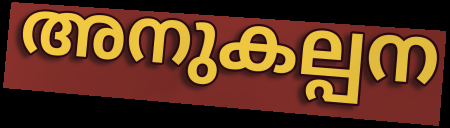
അനുകല്പന